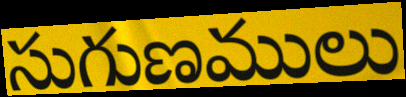
సుగుణములు